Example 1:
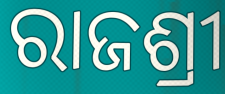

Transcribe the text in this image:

ରାଜଶ୍ରୀ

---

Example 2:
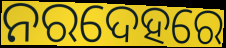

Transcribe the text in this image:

ନରଦେହରେ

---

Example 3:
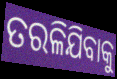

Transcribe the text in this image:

ତରଳିଯିବାକୁ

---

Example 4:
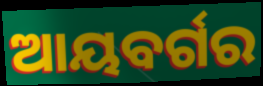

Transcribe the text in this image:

ଆୟବର୍ଗର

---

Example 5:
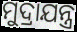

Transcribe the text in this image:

ମୁଦ୍ରାଯନ୍ତ୍ର